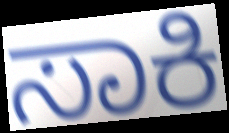
ಸಾಕಿ